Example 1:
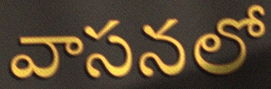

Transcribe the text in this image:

వాసనలో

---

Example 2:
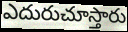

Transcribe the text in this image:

ఎదురుచూస్తారు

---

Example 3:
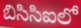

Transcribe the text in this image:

బిసిసిఐలో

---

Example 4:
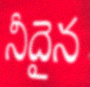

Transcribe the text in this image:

నీదైన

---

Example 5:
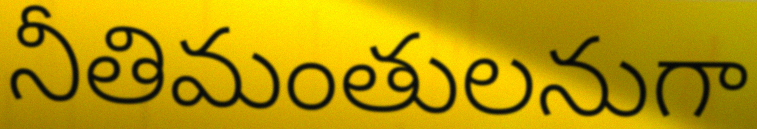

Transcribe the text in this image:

నీతిమంతులనుగా